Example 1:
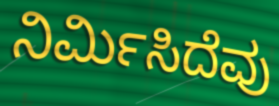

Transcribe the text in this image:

ನಿರ್ಮಿಸಿದೆವು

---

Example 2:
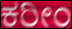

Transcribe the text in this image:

ಕರೀಂ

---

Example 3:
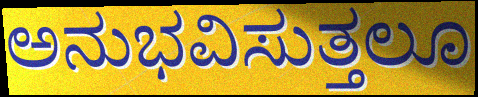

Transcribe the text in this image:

ಅನುಭವಿಸುತ್ತಲೂ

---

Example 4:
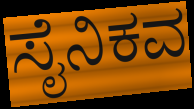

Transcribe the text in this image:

ಸೈನಿಕವ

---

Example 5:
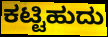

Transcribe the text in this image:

ಕಟ್ಟಿಹುದು